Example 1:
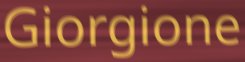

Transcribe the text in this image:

Giorgione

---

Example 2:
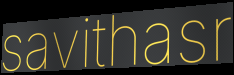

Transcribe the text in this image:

savithasr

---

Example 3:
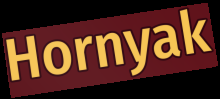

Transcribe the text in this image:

Hornyak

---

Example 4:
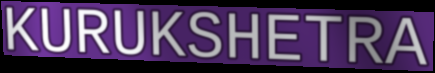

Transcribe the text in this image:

KURUKSHETRA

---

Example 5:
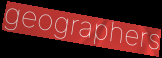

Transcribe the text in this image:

geographers